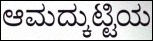
ಆಮದ್ಕುಟ್ಟಿಯ